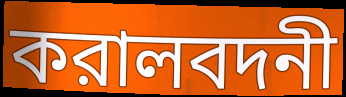
করালবদনী